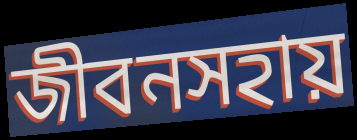
জীবনসহায়